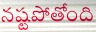
నష్టపోతోంది